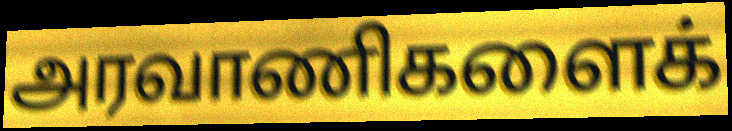
அரவாணிகளைக்